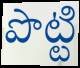
పొట్టి